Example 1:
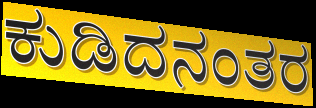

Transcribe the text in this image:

ಕುಡಿದನಂತರ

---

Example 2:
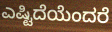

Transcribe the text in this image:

ಎಷ್ಟಿದೆಯೆಂದರೆ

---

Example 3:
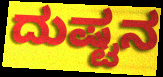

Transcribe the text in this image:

ದುಷ್ಟನ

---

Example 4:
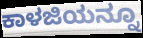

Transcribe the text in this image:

ಕಾಳಜಿಯನ್ನೂ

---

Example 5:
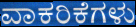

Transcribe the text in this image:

ವಾಕರಿಕೆಗಳು